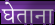
घेताना